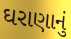
ઘરાણાનું